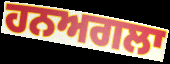
ਹਨਅਗਲਾ